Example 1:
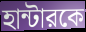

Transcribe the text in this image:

হান্টারকে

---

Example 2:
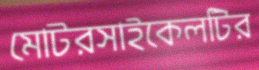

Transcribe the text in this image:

মোটরসাইকেলটির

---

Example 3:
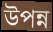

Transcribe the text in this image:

উপন্ন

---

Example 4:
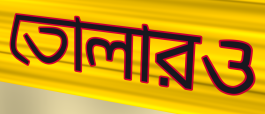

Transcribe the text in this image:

তোলারও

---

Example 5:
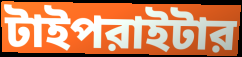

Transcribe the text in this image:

টাইপরাইটার